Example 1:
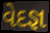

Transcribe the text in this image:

વેદજ્ઞ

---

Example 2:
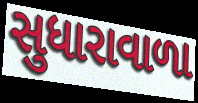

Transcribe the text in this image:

સુધારાવાળા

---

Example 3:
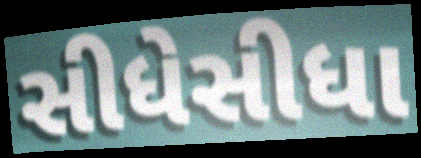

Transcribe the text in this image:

સીધેસીધા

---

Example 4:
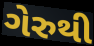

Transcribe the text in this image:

ગેરુથી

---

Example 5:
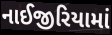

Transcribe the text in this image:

નાઈજીરિયામાં